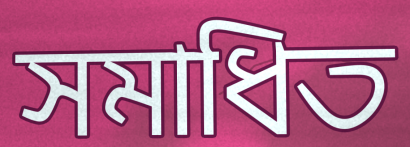
সমাধিত